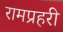
रामप्रहरी